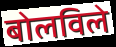
बोलविले